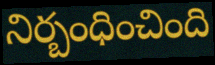
నిర్బంధించింది